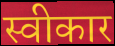
स्वीकार